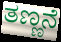
ತಣ್ಣನೆ